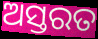
ଅସ୍ତରତ